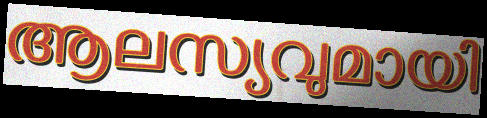
ആലസ്യവുമായി